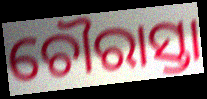
ଚୌରାସ୍ତା